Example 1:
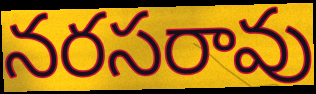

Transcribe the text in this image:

నరసరావు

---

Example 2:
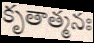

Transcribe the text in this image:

కృతాత్మనః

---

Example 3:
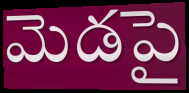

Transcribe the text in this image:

మెడపై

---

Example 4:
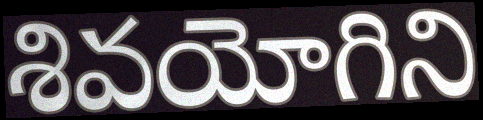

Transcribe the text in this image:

శివయోగిని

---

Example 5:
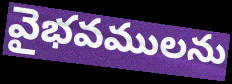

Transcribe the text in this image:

వైభవములను